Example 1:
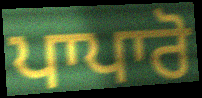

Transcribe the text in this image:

ਪਾਪਾਰੋ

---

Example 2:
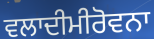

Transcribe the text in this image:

ਵਲਾਦੀਮੀਰੋਵਨਾ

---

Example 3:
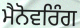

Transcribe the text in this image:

ਮੈਨੋਵਰਿੰਗ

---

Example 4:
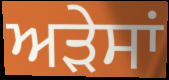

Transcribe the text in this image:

ਅੜੇਸਾਂ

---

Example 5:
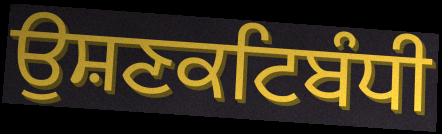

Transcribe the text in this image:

ਉਸ਼ਣਕਟਿਬੰਧੀ